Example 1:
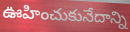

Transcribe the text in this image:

ఊహించుకునేదాన్ని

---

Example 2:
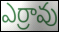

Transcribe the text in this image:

ఎర్రావు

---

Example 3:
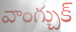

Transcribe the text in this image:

వాంగ్చుక్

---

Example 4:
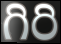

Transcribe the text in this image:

గిరి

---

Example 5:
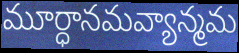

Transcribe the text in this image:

మూర్ధానమవ్యాన్మమ